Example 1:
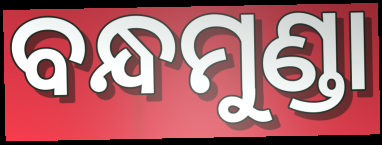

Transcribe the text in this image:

ବନ୍ଧମୁଣ୍ଡା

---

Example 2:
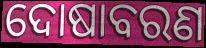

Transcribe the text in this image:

ଦୋଷାବରଣ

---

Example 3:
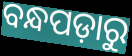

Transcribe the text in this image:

ବନ୍ଧପଡ଼ାରୁ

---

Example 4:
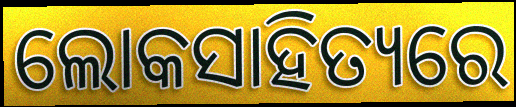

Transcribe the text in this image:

ଲୋକସାହିତ୍ୟରେ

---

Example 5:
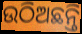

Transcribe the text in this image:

ଉଠିଅଛନ୍ତି